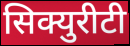
सिक्युरीटी